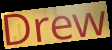
Drew